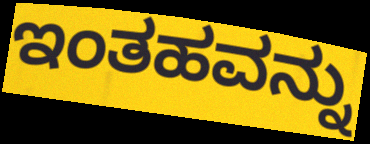
ಇಂತಹವನ್ನು